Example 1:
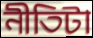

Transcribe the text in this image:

নীতিটা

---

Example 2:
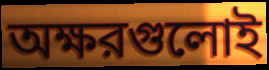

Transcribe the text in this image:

অক্ষরগুলোই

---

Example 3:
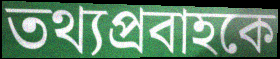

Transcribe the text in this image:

তথ্যপ্রবাহকে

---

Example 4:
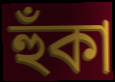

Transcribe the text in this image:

হুঁকা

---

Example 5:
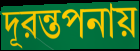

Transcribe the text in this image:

দূরন্তপনায়